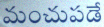
మంచుపడే